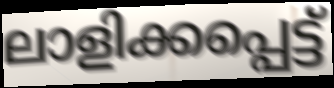
ലാളിക്കപ്പെട്ട്